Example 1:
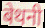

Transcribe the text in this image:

बेथनी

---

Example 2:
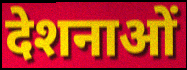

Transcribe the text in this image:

देशनाओं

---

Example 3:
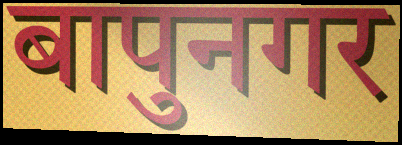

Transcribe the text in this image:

बापुनगर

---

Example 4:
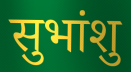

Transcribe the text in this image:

सुभांशु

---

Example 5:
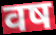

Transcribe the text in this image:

वष